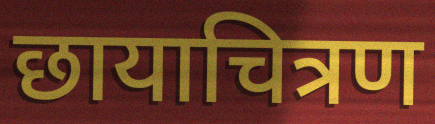
छायाचित्रण